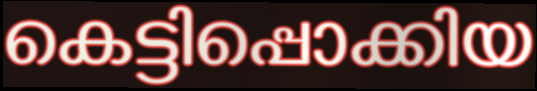
കെട്ടിപ്പൊക്കിയ